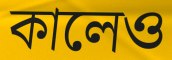
কালেও